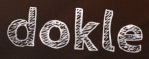
dokle